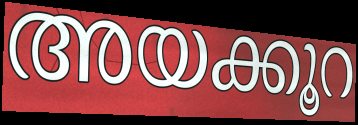
അയക്കൂറ